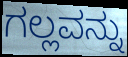
ಗಲ್ಲವನ್ನು